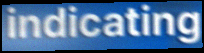
indicating